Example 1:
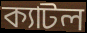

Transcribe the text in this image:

ক্যাটল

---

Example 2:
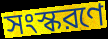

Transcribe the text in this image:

সংস্করণে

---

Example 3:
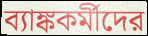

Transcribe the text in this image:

ব্যাঙ্ককর্মীদের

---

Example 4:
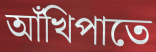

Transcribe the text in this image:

আঁখিপাতে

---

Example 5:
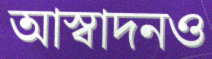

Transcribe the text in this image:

আস্বাদনও